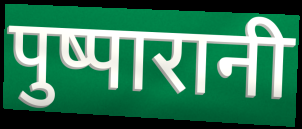
पुष्पारानी